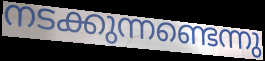
നടക്കുന്നണ്ടെന്നു